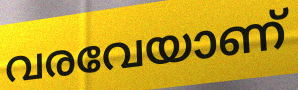
വരവേയാണ്